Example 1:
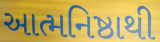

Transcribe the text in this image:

આત્મનિષ્ઠાથી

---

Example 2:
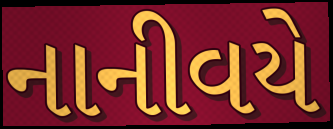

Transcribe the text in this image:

નાનીવયે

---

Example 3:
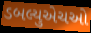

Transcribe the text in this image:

ડબલ્યુએચઓ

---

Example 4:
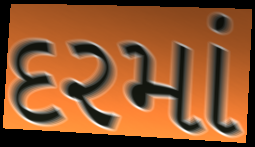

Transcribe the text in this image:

દરમાં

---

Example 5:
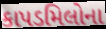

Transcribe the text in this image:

કાપડમિલોના